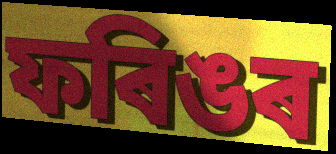
ফৰিঙৰ